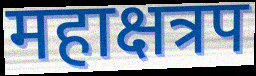
महाक्षत्रप